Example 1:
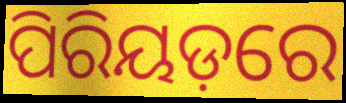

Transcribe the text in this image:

ପିରିୟଡ଼ରେ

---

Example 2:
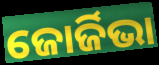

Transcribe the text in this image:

ଜୋର୍ଜିଭା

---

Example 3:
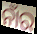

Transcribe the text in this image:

ନାଁର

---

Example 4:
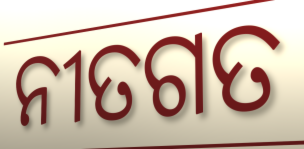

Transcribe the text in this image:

ନୀତଗତ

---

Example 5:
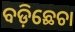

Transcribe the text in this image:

ବଡ଼ିଛେଚା